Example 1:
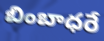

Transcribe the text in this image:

బింబాధరే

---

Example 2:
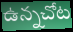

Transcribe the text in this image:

ఉన్నచోట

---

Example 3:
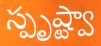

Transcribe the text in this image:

స్పృష్ట్వా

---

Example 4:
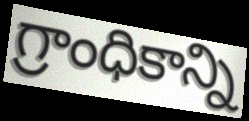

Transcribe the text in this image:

గ్రాంధికాన్ని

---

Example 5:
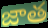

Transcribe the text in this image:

జాత